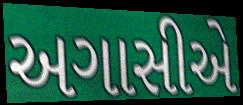
અગાસીએ